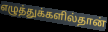
எழுத்துக்களில்தான்